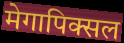
मेगापिक्सल